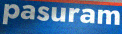
pasuram